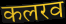
कलरव